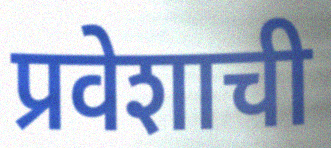
प्रवेशाची